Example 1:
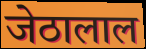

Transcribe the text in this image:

जेठालाल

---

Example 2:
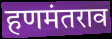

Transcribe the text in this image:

हणमंतराव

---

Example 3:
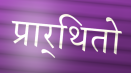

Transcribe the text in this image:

प्रार्थितो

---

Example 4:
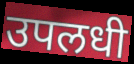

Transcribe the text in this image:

उपलधी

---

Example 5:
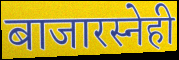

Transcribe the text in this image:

बाजारस्नेही